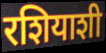
रशियाशी